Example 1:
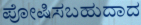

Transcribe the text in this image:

ಪೋಷಿಸಬಹುದಾದ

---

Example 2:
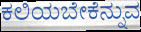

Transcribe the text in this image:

ಕಲಿಯಬೇಕೆನ್ನುವ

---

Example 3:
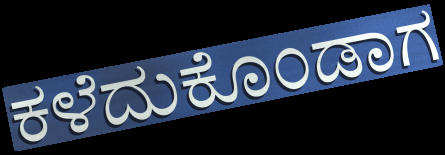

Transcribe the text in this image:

ಕಳೆದುಕೊಂಡಾಗ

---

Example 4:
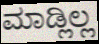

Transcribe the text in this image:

ಮಾಡ್ಲಿಲ್ಲ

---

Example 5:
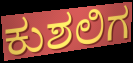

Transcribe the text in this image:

ಕುಶಲಿಗ